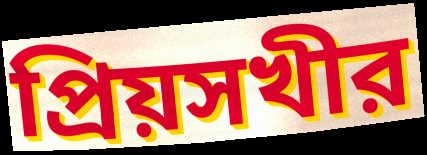
প্রিয়সখীর